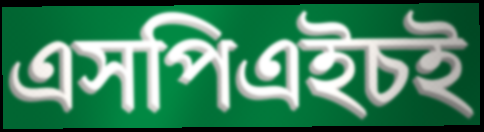
এসপিএইচই